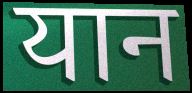
यान